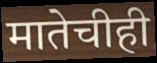
मातेचीही